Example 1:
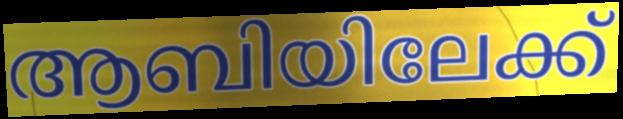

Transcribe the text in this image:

ആബിയിലേക്ക്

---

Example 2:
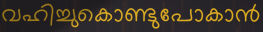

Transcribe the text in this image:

വഹിച്ചുകൊണ്ടുപോകാൻ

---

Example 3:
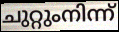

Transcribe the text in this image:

ചുറ്റുംനിന്ന്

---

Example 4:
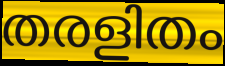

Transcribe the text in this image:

തരളിതം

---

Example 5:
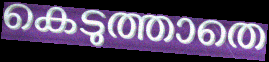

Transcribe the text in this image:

കെടുത്താതെ